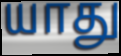
யாது